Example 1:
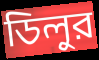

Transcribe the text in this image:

ডিলুর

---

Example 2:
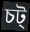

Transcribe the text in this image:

চট্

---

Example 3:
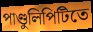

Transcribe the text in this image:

পাণ্ডুলিপিটিতে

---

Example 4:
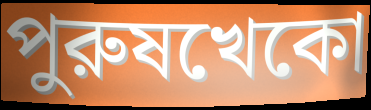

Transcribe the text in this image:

পুরুষখেকো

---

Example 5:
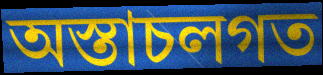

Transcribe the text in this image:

অস্তাচলগত